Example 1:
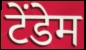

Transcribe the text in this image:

टेंडेम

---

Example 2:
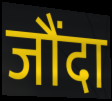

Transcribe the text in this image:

जौंदा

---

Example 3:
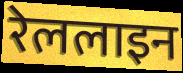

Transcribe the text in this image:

रेललाइन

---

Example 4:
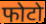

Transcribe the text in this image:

फोटो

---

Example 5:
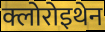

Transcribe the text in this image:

क्लोरोइथेन